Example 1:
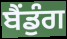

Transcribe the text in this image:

ਬੈਂਡੁੰਗ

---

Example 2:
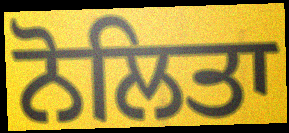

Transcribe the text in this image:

ਨੋਲਿਤਾ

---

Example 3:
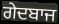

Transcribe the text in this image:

ਗੇਦਬਾਜ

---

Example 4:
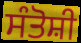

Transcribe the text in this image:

ਸੰਤੋਸ਼ੀ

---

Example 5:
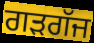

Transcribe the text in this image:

ਗਡ਼ਗੱਜ